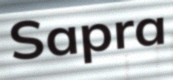
Sapra